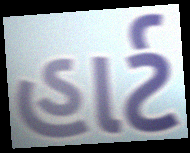
હાર્ટ